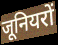
जूनियरों